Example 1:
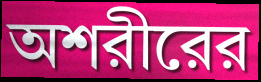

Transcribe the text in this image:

অশরীরের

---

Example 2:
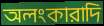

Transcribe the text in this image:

অলংকারাদি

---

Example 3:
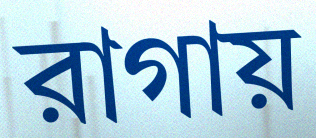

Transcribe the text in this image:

রাগায়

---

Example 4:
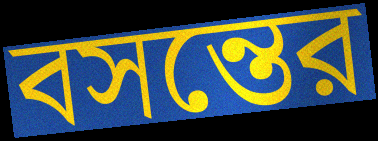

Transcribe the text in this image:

বসন্তের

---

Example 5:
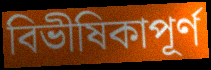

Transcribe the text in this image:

বিভীষিকাপূর্ণ